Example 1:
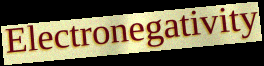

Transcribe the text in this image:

Electronegativity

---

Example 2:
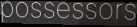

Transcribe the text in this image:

possessors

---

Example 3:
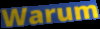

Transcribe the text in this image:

Warum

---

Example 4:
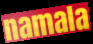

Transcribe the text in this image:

namala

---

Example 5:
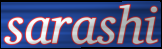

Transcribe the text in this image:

sarashi